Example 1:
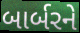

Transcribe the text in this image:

બાર્બરને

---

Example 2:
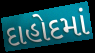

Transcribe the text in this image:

દાહોદમાં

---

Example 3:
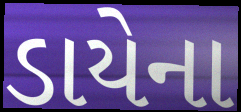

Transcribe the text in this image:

ડાયેના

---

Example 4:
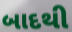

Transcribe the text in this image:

બાદથી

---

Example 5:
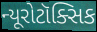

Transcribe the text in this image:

ન્યૂરોટૉક્સિક